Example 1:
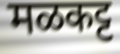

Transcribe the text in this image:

मळकट्ट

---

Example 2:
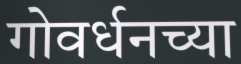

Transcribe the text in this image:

गोवर्धनच्या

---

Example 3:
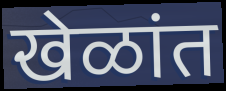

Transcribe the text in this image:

खेळांत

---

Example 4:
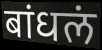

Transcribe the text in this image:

बांधलं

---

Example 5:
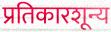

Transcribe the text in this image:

प्रतिकारशून्य